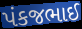
પંકજભાઈ